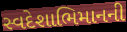
સ્વદેશાભિમાનની